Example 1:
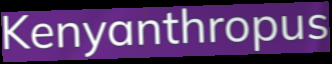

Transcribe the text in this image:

Kenyanthropus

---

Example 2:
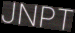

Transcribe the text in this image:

JNPT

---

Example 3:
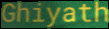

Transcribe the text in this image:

Ghiyath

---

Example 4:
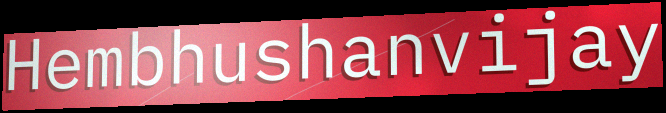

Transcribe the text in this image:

Hembhushanvijay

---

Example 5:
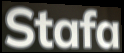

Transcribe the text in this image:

Stafa